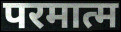
परमात्म